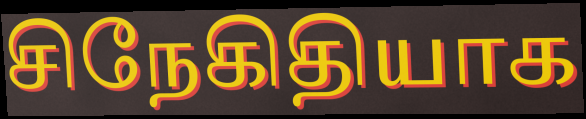
சிநேகிதியாக